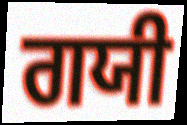
ਗਯੀ